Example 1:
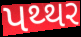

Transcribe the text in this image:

પથ્થર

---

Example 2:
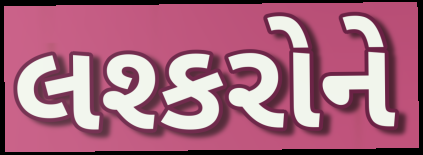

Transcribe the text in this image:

લશ્કરોને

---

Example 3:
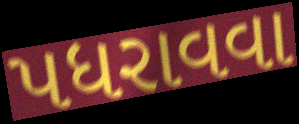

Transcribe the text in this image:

પધરાવવા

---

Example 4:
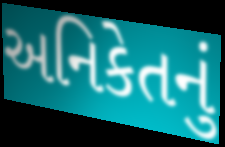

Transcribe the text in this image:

અનિકેતનું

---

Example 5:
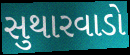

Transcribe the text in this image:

સુથારવાડો